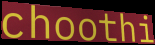
choothi